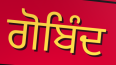
ਗੋਬਿੰਦ